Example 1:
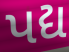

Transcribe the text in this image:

પદ્ય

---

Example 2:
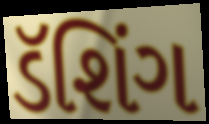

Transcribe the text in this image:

ડૅશિંગ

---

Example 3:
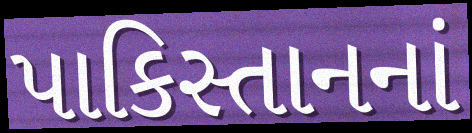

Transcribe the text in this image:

પાકિસ્તાનનાં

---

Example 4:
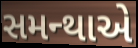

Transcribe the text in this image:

સમન્થાએ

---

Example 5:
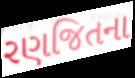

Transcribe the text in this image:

રણજિતના